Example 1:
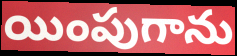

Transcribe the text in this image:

యింపుగాను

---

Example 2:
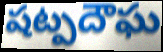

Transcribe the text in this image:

షట్పదౌఘ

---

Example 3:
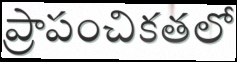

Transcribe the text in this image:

ప్రాపంచికతలో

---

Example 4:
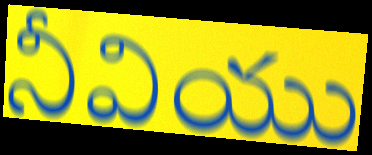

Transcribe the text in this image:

నీవియు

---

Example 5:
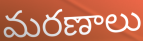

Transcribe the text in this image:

మరణాలు